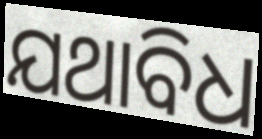
ଯଥାବିଧ